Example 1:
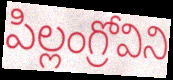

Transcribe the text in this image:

పిల్లంగ్రోవిని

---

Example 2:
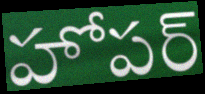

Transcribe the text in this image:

హోపర్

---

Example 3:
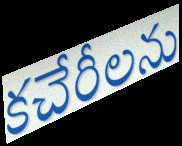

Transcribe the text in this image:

కచేరీలను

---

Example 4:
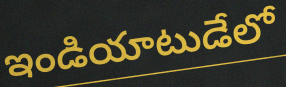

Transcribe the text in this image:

ఇండియాటుడేలో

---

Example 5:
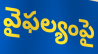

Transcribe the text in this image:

వైఫల్యంపై